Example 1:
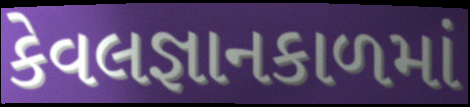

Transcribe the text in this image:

કેવલજ્ઞાનકાળમાં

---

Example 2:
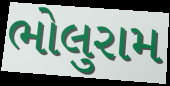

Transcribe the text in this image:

ભોલુરામ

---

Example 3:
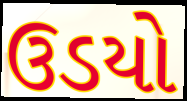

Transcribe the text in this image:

ઉડયો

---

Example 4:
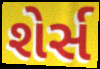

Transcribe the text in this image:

શેર્સ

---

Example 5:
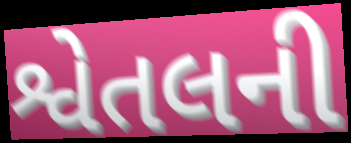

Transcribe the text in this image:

શ્વેતલની